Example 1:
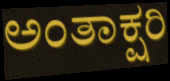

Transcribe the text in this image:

ಅಂತಾಕ್ಷರಿ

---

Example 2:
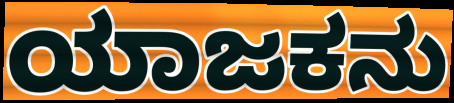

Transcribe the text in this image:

ಯಾಜಕನು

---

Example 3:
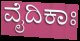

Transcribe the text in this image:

ವೈದಿಕಾಃ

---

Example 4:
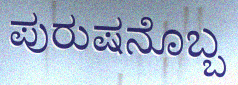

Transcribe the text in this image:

ಪುರುಷನೊಬ್ಬ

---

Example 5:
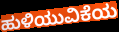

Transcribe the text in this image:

ಹುಳಿಯುವಿಕೆಯ